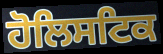
ਹੋਲਿਸਟਿਕ